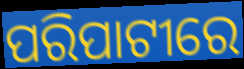
ପରିପାଟୀରେ